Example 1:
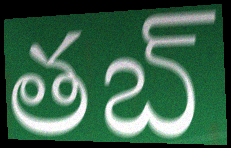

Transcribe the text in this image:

తబ్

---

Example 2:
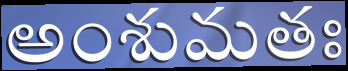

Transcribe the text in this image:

అంశుమతః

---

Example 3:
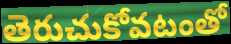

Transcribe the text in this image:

తెరుచుకోవటంతో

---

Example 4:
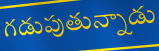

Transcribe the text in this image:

గడుపుతున్నాడు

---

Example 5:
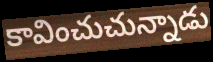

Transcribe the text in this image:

కావించుచున్నాడు